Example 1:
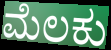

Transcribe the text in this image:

ಮೆಲಕು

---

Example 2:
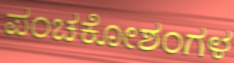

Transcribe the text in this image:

ಪಂಚಕೋಶಂಗಳ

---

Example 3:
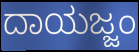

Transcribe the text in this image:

ದಾಯಜ್ಜಂ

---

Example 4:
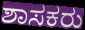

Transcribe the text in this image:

ಶಾಸಕರು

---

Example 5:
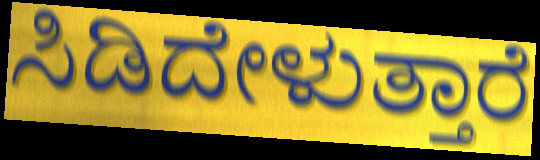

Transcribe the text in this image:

ಸಿಡಿದೇಳುತ್ತಾರೆ